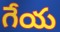
గేయ